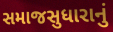
સમાજસુધારાનું